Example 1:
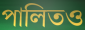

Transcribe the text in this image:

পালিতও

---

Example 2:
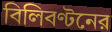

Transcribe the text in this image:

বিলিবণ্টনের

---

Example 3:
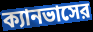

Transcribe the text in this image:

ক্যানভাসের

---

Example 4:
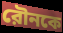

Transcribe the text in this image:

রৌনকে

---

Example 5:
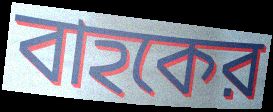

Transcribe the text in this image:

বাহকের